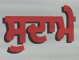
ਸੁਦਾਮੇ